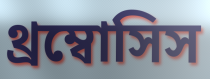
থ্রম্বোসিস